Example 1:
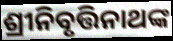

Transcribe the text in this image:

ଶ୍ରୀନିବୃତ୍ତିନାଥଙ୍କ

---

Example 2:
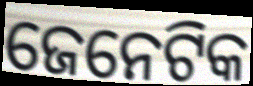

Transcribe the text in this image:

ଜେନେଟିକ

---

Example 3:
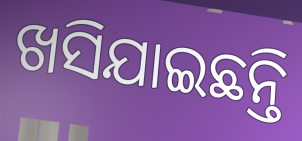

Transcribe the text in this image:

ଖସିଯାଇଛନ୍ତି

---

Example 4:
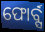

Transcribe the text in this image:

ଫୋର୍ବ୍ସ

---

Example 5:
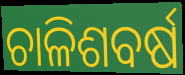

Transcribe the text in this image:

ଚାଳିଶବର୍ଷ